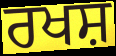
ਰਖਸ਼